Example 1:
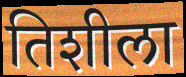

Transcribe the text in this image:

तिशीला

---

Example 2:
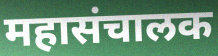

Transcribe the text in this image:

महासंचालक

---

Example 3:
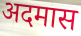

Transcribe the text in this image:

अदमास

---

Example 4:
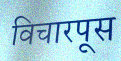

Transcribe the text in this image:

विचारपूस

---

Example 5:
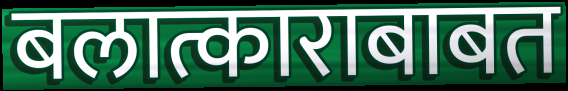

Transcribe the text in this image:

बलात्काराबाबत